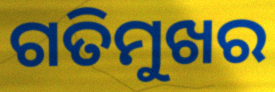
ଗତିମୁଖର